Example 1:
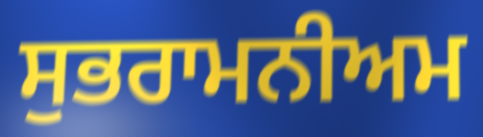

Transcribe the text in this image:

ਸੁਭਰਾਮਨੀਅਮ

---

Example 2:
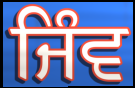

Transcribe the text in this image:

ਜਿੰਵ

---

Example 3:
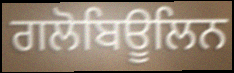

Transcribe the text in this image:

ਗਲੋਬਿਊਲਿਨ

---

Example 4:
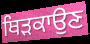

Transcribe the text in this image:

ਥਿੜਕਾਉਣ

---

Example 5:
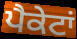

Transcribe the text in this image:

ਪੈਕੇਟਾਂ